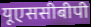
यूएससीबीपी